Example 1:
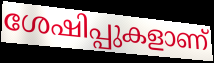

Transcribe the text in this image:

ശേഷിപ്പുകളാണ്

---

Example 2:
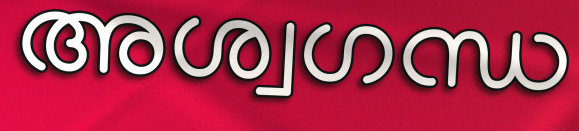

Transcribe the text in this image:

അശ്വഗന്ധ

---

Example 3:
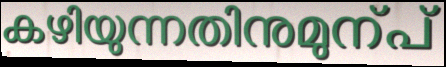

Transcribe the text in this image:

കഴിയുന്നതിനുമുന്പ്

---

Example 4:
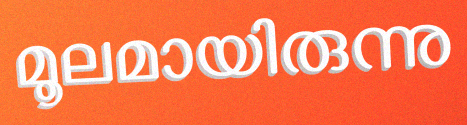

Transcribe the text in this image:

മൂലമായിരുന്നു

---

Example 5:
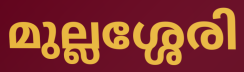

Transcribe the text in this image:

മുല്ലശ്ശേരി